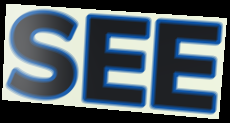
SEE